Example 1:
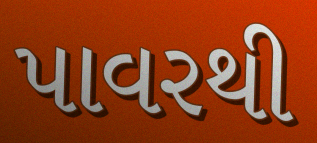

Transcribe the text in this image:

પાવરથી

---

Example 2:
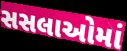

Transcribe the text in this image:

સસલાઓમાં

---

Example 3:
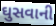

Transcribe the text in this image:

ઘુસવાની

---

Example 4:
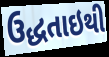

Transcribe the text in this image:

ઉદ્ધતાઇથી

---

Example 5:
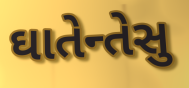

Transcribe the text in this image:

ઘાતેન્તેસુ